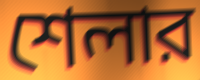
শেলার